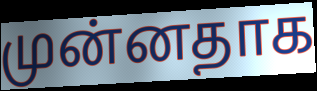
முன்னதாக